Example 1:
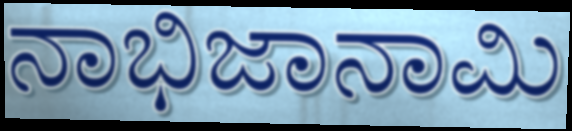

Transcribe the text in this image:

ನಾಭಿಜಾನಾಮಿ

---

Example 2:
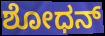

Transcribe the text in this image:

ಶೋಧನ್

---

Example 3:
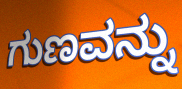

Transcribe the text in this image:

ಗುಣವನ್ನು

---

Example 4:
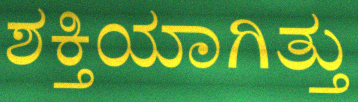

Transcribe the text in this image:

ಶಕ್ತಿಯಾಗಿತ್ತು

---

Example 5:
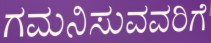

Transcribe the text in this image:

ಗಮನಿಸುವವರಿಗೆ